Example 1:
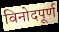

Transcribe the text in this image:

विनोदपूर्ण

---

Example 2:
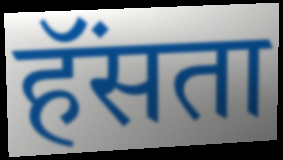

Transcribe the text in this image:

हॅंसता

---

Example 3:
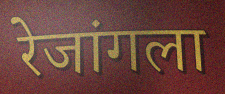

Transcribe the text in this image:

रेजांगला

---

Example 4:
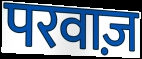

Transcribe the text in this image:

परवाज़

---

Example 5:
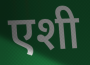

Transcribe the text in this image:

एशी